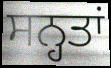
ਸਨ੍ਹਤਾਂ